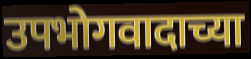
उपभोगवादाच्या